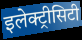
इलेक्ट्रीसिटी